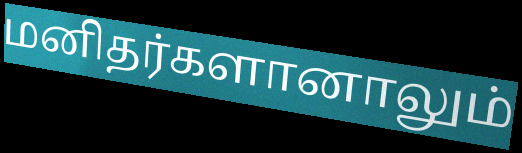
மனிதர்களானாலும்